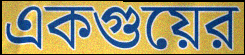
একগুয়ের